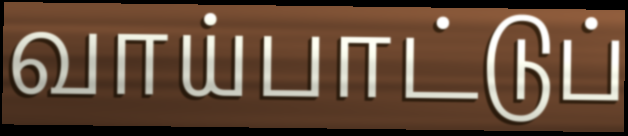
வாய்பாட்டுப்